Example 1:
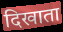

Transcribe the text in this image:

दिखाता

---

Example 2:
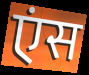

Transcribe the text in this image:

एंस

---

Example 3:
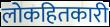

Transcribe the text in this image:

लोकहितकारी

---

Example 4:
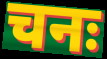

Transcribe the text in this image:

चनः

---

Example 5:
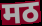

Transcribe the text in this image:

मठ